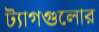
ট্যাগগুলোর